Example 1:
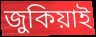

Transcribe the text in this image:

জুকিয়াই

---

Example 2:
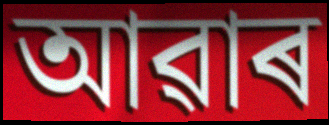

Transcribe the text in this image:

আৱাৰ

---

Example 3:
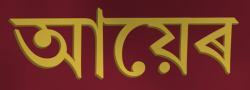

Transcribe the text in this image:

আয়েৰ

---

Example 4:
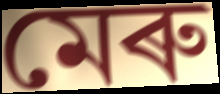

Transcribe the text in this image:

মেৰু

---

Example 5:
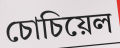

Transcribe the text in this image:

চোচিয়েল